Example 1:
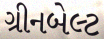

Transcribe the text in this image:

ગ્રીનબેલ્ટ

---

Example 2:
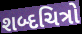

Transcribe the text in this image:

શબ્દચિત્રો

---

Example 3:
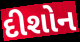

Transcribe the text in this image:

દીશોન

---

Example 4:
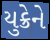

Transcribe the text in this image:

યુક્રેને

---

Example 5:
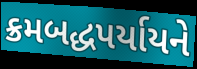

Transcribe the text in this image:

ક્રમબદ્ધપર્યાયને